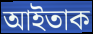
আইতাক